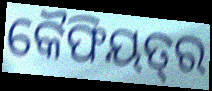
କୈଫିୟତ୍‌ର